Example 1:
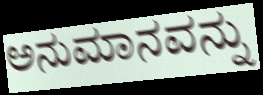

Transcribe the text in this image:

ಅನುಮಾನವನ್ನು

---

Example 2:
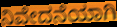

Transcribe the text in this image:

ನಿವೇದನೆಯಾಗಿ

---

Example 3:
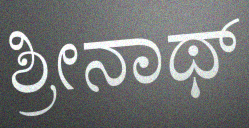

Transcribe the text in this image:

ಶ್ರೀನಾಥ್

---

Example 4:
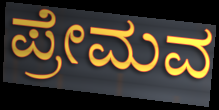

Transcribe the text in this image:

ಪ್ರೇಮವ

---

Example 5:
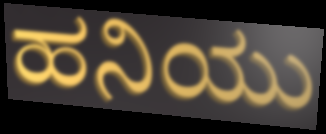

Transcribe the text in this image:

ಹನಿಯು